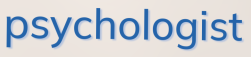
psychologist